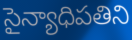
సైన్యాధిపతిని